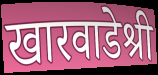
खारवाडेश्री